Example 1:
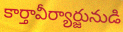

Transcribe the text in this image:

కార్తావీర్యార్జునుడి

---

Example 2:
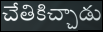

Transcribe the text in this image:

చేతికిచ్చాడు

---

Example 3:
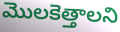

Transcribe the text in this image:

మొలకెత్తాలని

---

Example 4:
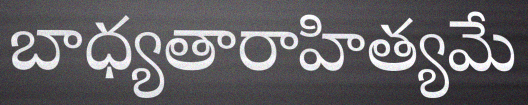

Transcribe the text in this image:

బాధ్యతారాహిత్యమే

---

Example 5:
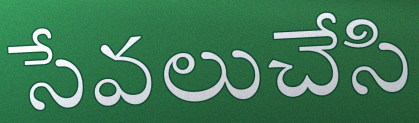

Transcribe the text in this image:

సేవలుచేసి